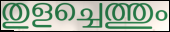
തുളച്ചെത്തും